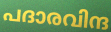
പദാരവിന്ദ